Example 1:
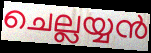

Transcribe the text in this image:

ചെല്ലയ്യൻ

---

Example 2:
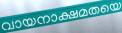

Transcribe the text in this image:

വായനാക്ഷമതയെ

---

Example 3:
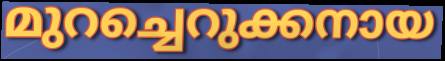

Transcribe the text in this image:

മുറച്ചെറുക്കനായ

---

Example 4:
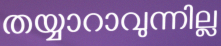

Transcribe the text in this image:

തയ്യാറാവുന്നില്ല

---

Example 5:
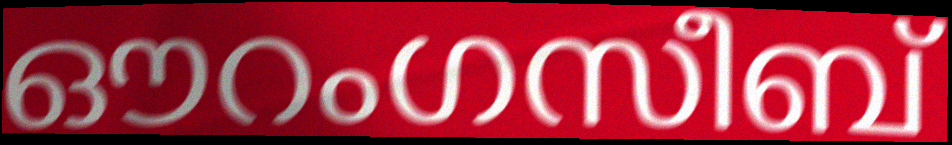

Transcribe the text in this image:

ഔറംഗസീബ്